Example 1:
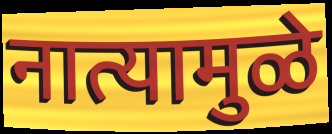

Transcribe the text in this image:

नात्यामुळे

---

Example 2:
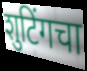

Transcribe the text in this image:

शुटिंगचा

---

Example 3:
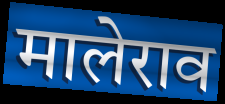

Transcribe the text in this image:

मालेराव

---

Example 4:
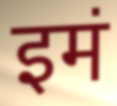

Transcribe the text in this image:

इमं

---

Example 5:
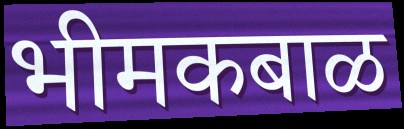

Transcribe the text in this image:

भीमकबाळ